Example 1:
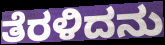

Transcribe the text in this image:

ತೆರಳಿದನು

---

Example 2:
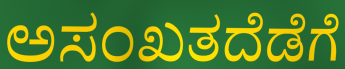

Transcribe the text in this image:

ಅಸಂಖತದೆಡೆಗೆ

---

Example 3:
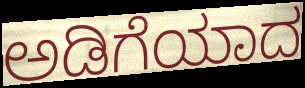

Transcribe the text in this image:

ಅಡಿಗೆಯಾದ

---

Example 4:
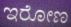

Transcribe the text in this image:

ಇರೋಣ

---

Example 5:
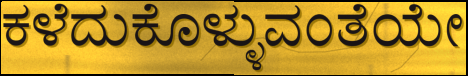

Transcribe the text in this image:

ಕಳೆದುಕೊಳ್ಳುವಂತೆಯೇ